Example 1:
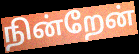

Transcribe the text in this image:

நின்றேன்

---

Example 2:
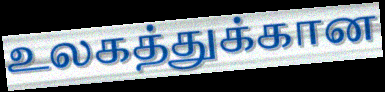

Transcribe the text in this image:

உலகத்துக்கான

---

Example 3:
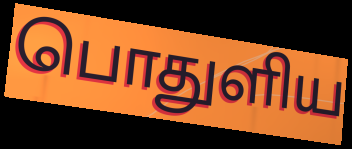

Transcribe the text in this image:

பொதுளிய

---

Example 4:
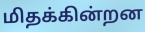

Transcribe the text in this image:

மிதக்கின்றன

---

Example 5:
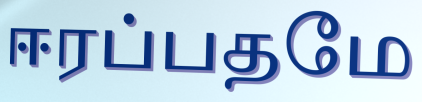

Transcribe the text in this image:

ஈரப்பதமே